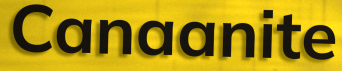
Canaanite